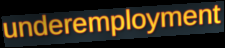
underemployment